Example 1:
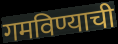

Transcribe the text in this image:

गमविण्याची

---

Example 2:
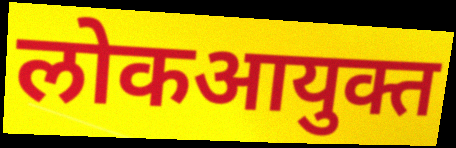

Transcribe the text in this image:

लोकआयुक्त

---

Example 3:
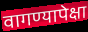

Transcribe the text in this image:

वागण्यापेक्षा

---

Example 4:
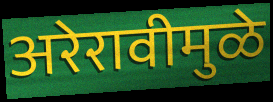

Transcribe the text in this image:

अरेरावीमुळे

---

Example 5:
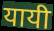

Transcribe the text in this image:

यायी